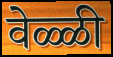
वेळ्ळी